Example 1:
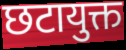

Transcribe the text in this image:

छटायुक्त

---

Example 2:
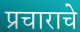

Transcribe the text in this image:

प्रचाराचे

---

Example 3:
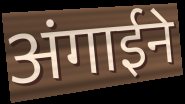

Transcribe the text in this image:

अंगाईने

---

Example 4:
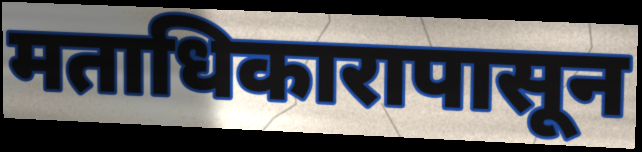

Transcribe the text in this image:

मताधिकारापासून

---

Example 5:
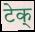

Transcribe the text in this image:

टेक्